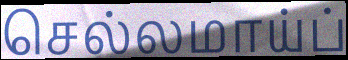
செல்லமாய்ப்